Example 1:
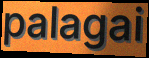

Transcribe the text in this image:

palagai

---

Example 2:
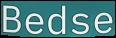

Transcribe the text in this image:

Bedse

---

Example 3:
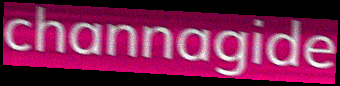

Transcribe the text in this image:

channagide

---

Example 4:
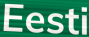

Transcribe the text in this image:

Eesti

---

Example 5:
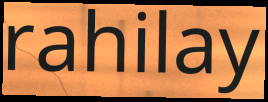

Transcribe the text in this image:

rahilay